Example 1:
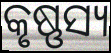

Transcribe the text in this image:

କୃଷ୍ଣସ୍ୟ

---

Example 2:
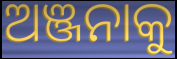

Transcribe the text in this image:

ଅଞ୍ଜନାକୁ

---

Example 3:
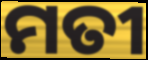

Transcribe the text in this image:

ମତୀ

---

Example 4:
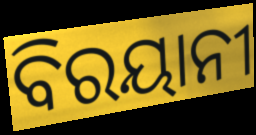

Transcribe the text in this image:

ବିରୟାନୀ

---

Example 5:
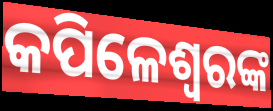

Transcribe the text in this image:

କପିଳେଶ୍ବରଙ୍କ